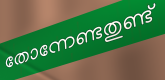
തോന്നേണ്ടതുണ്ട്